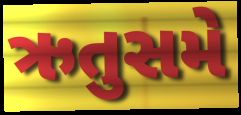
ઋતુસમે